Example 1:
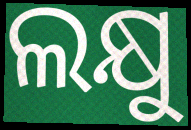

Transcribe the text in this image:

ଲକ୍ଷୁ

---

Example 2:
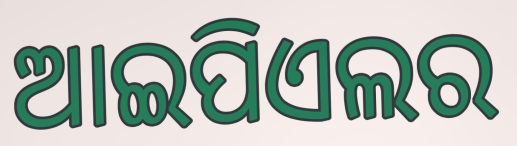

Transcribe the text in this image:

ଆଇପିଏଲର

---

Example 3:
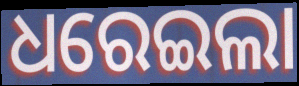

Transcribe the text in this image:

ଧରେଇଲା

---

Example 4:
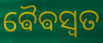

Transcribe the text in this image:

ଵୈଵସ୍ୱତ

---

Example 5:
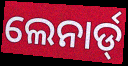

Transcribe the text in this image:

ଲେନାର୍ଡ୍